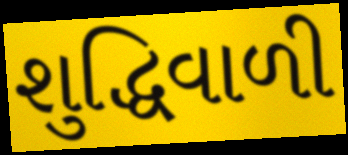
શુદ્ધિવાળી